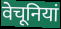
वेचूनियां